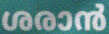
ശരാൻ